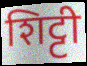
शिट्टी